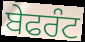
ਬੇਫਰੰਟ